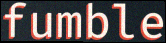
fumble